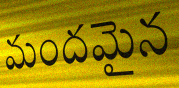
మందమైన